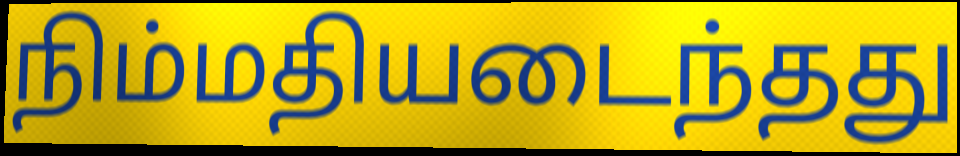
நிம்மதியடைந்தது